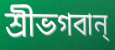
শ্রীভগবান্